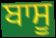
ਬਾਸੂ